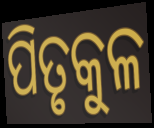
ପିତୃକୁଳ